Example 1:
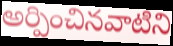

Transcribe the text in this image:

అర్పించినవాటిని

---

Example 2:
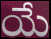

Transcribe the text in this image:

యే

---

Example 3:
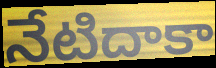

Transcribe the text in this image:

నేటిదాకా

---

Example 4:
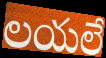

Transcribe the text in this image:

లయలే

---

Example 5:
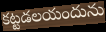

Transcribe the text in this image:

కట్టడలయందును